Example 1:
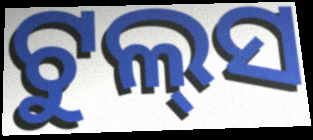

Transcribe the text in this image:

ଟୁଲ୍‌ସ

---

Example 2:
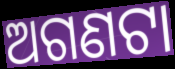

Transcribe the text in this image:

ଅଗଣଟା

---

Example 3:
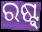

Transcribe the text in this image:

ରଷ୍ଟ୍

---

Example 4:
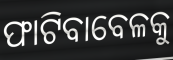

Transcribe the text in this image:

ଫାଟିବାବେଳକୁ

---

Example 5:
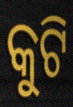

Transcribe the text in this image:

କୁଟି